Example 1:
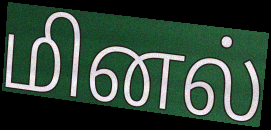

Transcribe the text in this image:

மினல்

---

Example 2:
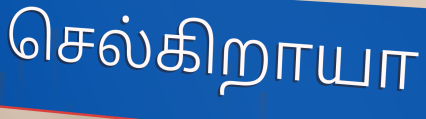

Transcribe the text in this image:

செல்கிறாயா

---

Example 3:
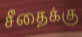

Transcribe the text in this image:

சீதைக்கு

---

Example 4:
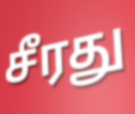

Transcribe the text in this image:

சீரது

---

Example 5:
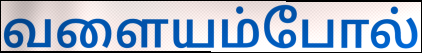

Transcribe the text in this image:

வளையம்போல்